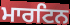
ਮਾਰਟਿਨ